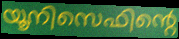
യൂനിസെഫിന്റെ